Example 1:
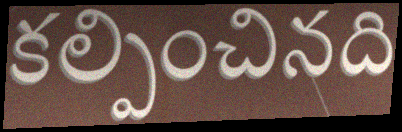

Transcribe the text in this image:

కల్పించినది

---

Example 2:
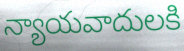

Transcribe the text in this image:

న్యాయవాదులకి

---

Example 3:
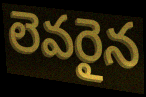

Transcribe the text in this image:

లెవరైన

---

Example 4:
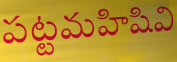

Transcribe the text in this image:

పట్టమహిషివి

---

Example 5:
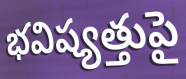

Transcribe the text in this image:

భవిష్యత్తుపై